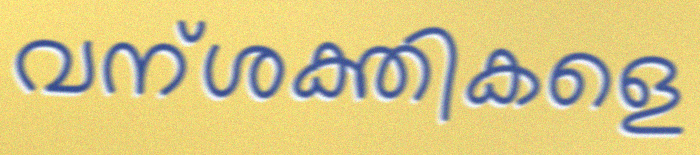
വന്ശക്തികളെ